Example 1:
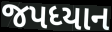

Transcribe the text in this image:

જપધ્યાન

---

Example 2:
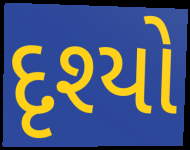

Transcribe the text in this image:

દૃશ્યો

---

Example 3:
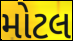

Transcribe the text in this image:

મોટલ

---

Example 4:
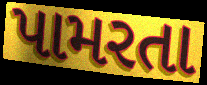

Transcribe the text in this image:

પામરતા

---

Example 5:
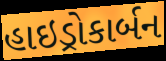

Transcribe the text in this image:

હાઇડ્રોકાર્બન